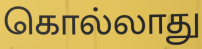
கொல்லாது